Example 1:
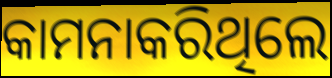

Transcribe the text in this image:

କାମନାକରିଥିଲେ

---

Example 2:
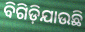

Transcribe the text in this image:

ବିଗିଡ଼ିଯାଉଛି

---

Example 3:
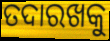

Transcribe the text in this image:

ତଦାରଖକୁ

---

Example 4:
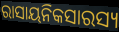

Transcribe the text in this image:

ରାସାୟନିକସାରସ୍ୟ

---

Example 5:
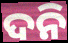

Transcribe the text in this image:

ଦନି